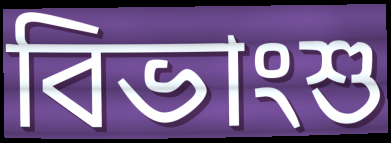
বিভাংশু